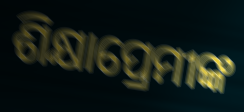
ଶିକ୍ଷାପ୍ରେମୀଙ୍କ